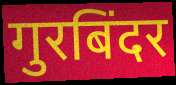
गुरबिंदर